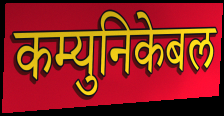
कम्युनिकेबल